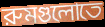
রুমগুলোতে